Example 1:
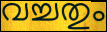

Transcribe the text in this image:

വച്ചതും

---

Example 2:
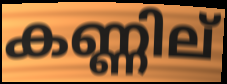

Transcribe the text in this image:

കണ്ണില്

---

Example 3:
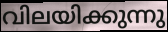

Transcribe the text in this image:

വിലയിക്കുന്നു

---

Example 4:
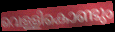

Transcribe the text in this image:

വെള്ളികൊണ്ടും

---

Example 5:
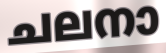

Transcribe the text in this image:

ചലനാ